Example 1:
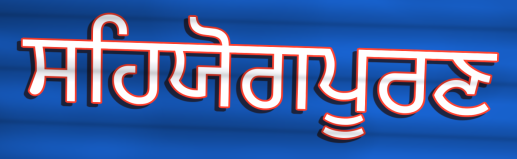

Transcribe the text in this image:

ਸਹਿਯੋਗਪੂਰਣ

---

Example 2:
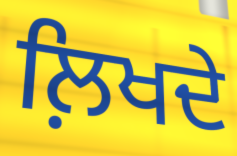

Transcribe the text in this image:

ਲ਼ਿਖਦੇ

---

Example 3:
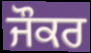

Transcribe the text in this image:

ਜੌਕਰ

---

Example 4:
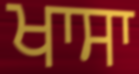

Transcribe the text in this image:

ਖਾਸਾ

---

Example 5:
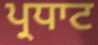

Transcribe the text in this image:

ਪ੍ਰਧਾਟ